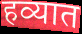
हव्यात